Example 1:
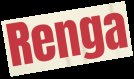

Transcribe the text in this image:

Renga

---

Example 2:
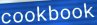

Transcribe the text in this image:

cookbook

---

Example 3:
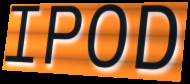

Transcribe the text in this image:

IPOD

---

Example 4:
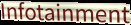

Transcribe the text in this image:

Infotainment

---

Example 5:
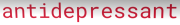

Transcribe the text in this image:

antidepressant